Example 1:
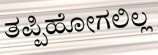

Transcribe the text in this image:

ತಪ್ಪಿಹೋಗಲಿಲ್ಲ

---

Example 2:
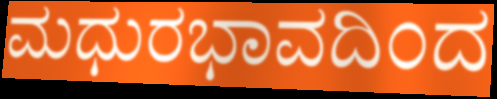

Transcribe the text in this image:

ಮಧುರಭಾವದಿಂದ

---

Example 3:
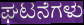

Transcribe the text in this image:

ಘಟನೆಗಳು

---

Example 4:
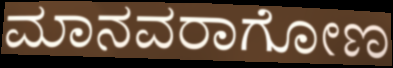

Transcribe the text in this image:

ಮಾನವರಾಗೋಣ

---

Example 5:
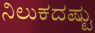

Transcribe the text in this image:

ನಿಲುಕದಷ್ಟು